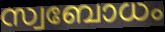
സ്വബോധം